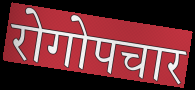
रोगोपचार